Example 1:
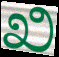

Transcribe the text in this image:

ಖಿ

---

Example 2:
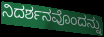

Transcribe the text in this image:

ನಿದರ್ಶನವೊಂದನ್ನು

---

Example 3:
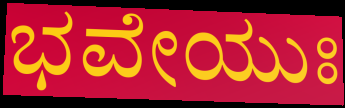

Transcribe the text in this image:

ಭವೇಯುಃ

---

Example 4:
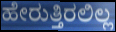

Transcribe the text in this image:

ಹೇರುತ್ತಿರಲಿಲ್ಲ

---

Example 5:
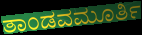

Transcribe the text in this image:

ತಾಂಡವಮೂರ್ತಿ